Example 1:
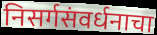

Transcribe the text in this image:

निसर्गसंवर्धनाचा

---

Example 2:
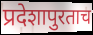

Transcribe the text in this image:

प्रदेशापुरताच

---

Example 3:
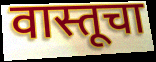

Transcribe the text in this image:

वास्तूचा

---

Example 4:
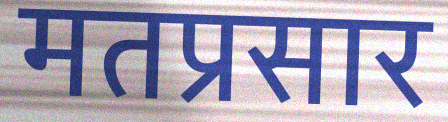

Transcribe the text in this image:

मतप्रसार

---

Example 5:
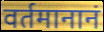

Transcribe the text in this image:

वर्तमानानं